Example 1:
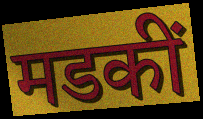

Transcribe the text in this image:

मडकीं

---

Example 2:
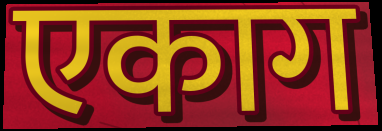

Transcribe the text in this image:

एकाग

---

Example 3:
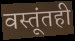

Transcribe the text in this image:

वस्तूंतही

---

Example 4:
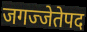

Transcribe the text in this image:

जगज्जेतेपद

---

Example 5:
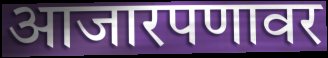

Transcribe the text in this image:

आजारपणावर